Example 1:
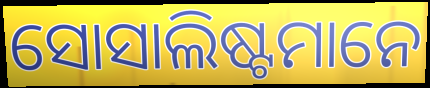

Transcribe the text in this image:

ସୋସାଲିଷ୍ଟମାନେ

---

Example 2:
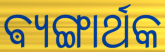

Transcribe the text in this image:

ଵ୍ୟଙ୍ଗାର୍ଥକ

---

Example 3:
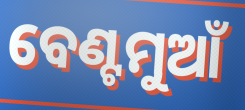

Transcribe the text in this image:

ବେଣ୍ଟମୁଆଁ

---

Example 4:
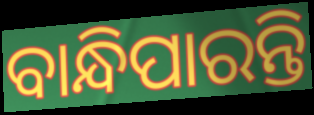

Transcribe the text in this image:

ବାନ୍ଧିପାରନ୍ତି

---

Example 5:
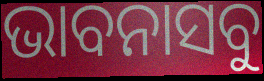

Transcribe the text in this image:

ଭାବନାସବୁ